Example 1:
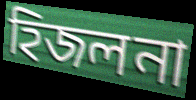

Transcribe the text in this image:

হিজলনা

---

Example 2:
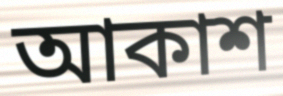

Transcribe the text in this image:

আকাশ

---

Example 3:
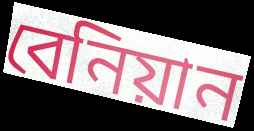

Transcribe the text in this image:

বেনিয়ান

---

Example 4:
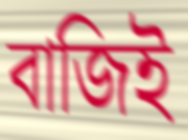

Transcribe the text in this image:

বাজিই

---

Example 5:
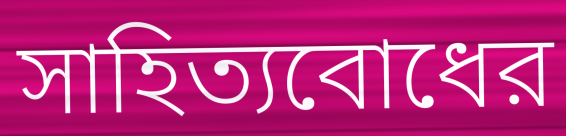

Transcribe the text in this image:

সাহিত্যবোধের